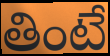
తింటే